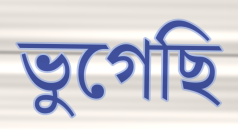
ভুগেছি